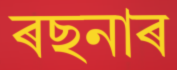
ৰছনাৰ